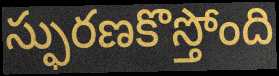
స్ఫురణకొస్తోంది